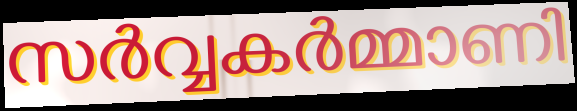
സർവ്വകർമ്മാണി